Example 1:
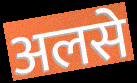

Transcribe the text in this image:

अलसे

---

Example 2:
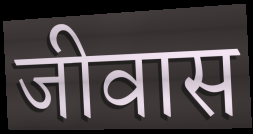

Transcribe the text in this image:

जीवास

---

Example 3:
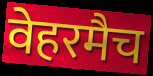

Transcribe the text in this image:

वेहरमैच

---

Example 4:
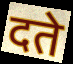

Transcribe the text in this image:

दते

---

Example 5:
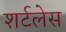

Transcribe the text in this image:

शर्टलेस